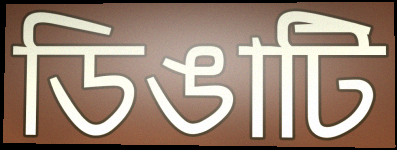
ডিঙাটি